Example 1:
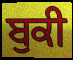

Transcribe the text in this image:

ਬੁਕੀ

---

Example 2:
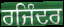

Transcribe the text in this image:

ਰਜਿੰਦਰ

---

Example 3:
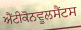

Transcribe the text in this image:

ਐਂਟੀਕੋਨਵੂਲਸੈਂਟਸ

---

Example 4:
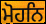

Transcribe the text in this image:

ਮੋਹਨਿ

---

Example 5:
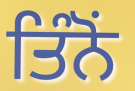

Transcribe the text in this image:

ਤਿੰਨੋਂ